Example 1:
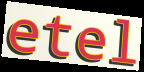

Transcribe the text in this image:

etel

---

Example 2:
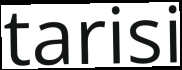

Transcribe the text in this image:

tarisi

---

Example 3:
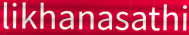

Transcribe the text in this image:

likhanasathi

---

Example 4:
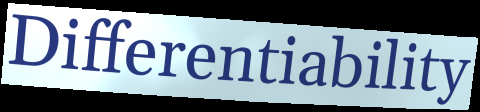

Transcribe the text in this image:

Differentiability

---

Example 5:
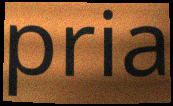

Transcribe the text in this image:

pria